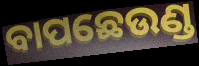
ବାପଛେଉଣ୍ଡ